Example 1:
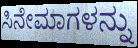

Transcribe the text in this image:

ಸಿನೇಮಾಗಳನ್ನು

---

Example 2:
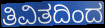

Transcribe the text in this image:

ತಿವಿತದಿಂದ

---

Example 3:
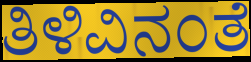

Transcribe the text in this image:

ತಿಳಿವಿನಂತೆ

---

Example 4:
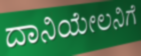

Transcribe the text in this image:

ದಾನಿಯೇಲನಿಗೆ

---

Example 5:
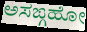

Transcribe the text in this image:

ಅಸಙ್ಗಹೋ